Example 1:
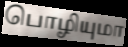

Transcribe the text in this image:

பொழியுமா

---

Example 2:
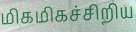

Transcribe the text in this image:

மிகமிகச்சிறிய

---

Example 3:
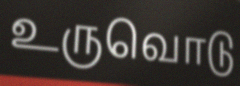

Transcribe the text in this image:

உருவொடு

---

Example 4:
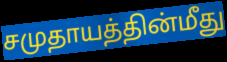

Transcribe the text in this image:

சமுதாயத்தின்மீது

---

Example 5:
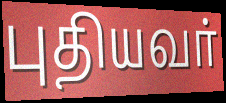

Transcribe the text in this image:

புதியவர்